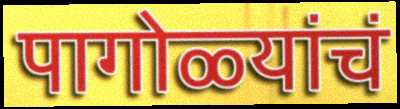
पागोळ्यांचं